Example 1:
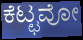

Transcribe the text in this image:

ಕೆಟ್ಟವೋ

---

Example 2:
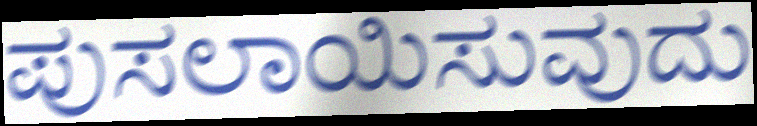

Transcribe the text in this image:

ಪುಸಲಾಯಿಸುವುದು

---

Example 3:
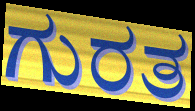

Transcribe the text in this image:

ಗುರತ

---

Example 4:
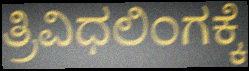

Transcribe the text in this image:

ತ್ರಿವಿಧಲಿಂಗಕ್ಕೆ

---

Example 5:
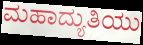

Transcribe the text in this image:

ಮಹಾದ್ಯುತಿಯು